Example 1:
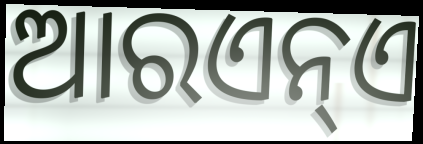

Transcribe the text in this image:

ଆରଏନ୍ଏ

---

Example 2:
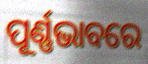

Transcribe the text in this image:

ପୂର୍ଣ୍ଣଭାବରେ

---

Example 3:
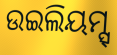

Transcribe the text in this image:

ଉଇଲିୟମ୍ସ୍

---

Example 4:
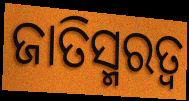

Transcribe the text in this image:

ଜାତିସ୍ମରତ୍ୱ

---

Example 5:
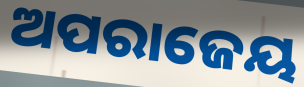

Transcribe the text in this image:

ଅପରାଜେୟ